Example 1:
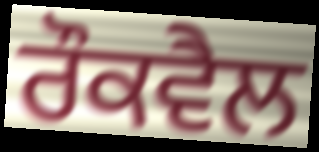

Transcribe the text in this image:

ਰੌਕਵੈਲ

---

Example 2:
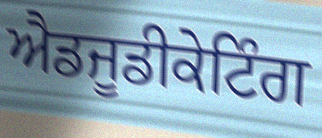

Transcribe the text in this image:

ਐਡਜੂਡੀਕੇਟਿੰਗ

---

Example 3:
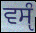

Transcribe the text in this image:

ਵਸੵੰ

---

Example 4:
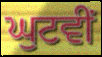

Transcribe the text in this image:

ਘੁਟਵੀਂ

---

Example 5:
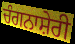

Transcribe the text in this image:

ਚੰਗਨਾਸ਼ੇਰੀ